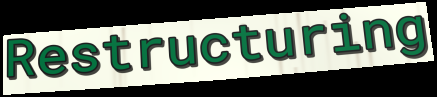
Restructuring